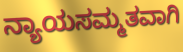
ನ್ಯಾಯಸಮ್ಮತವಾಗಿ